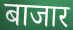
बाजार